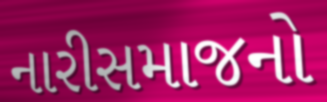
નારીસમાજનો